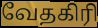
வேதகிரி